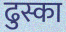
ढुस्का